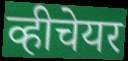
व्हीचेयर